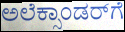
ಅಲೆಕ್ಸಾಂಡರ್‌ಗೆ